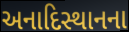
અનાદિસ્થાનના